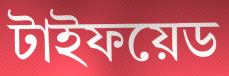
টাইফয়েড